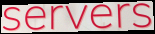
servers